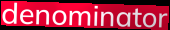
denominator